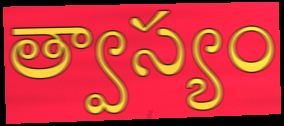
త్వాస్యం